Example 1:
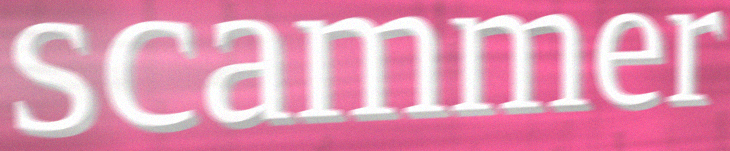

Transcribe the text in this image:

scammer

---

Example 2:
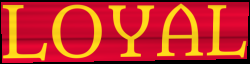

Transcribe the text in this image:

LOYAL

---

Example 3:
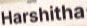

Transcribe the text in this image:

Harshitha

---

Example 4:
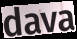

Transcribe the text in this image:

dava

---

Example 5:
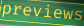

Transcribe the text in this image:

previews